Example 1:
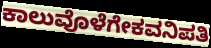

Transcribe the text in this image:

ಕಾಲುವೊಳೆಗೇಕವನಿಪತಿ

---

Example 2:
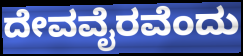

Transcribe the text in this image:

ದೇವವೈರವೆಂದು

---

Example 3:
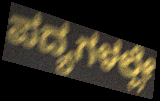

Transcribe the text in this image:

ಪದ್ಯಗಳಲ್ಲೇ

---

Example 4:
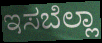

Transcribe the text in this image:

ಇಸಬೆಲ್ಲಾ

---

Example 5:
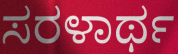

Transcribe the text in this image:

ಸರಳಾರ್ಥ